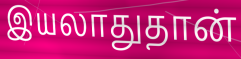
இயலாதுதான்